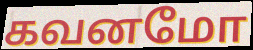
கவனமோ